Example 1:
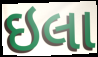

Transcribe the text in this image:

ઇલા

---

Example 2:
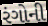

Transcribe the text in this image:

રંગોની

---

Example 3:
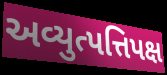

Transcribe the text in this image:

અવ્યુત્પત્તિપક્ષ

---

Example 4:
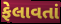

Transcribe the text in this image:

ફેલાવતાં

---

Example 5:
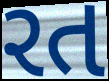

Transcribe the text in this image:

રત